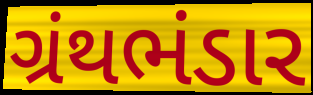
ગ્રંથભંડાર